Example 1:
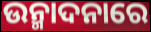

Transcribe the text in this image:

ଉନ୍ମାଦନାରେ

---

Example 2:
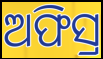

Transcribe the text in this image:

ଅଫିସ୍ର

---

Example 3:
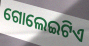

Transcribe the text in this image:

ଗୋଲେଇଟିଏ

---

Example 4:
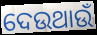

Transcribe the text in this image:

ଦେଉଥାଉଁ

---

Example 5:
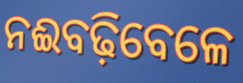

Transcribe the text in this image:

ନଈବଢ଼ିବେଳେ